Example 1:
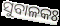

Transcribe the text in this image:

ସୁବାଳକଃ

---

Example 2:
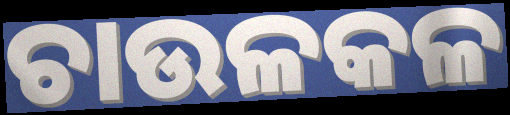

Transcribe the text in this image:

ଚାଉଳକଳ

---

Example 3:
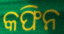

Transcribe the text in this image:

କଫିନ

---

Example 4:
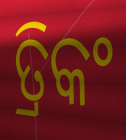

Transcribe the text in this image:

ତ୍ରିକଂ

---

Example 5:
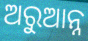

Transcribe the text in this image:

ଅରୁଆନ୍ନ